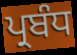
ਪ੍ਰਬੰਧ